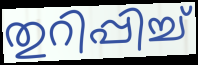
തുറിപ്പിച്ച്